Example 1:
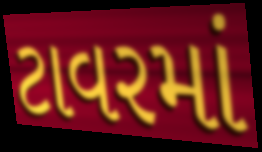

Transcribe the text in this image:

ટાવરમાં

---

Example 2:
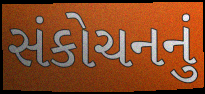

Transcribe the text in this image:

સંકોચનનું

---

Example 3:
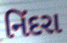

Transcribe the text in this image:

નિંદરા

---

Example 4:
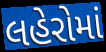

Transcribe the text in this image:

લહેરોમાં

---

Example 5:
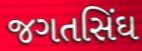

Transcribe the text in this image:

જગતસિંઘ